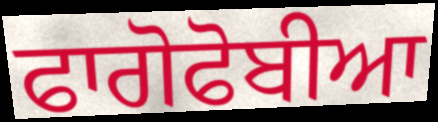
ਫਾਗੋਫੋਬੀਆ